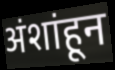
अंशांहून